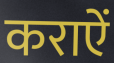
कराऐं